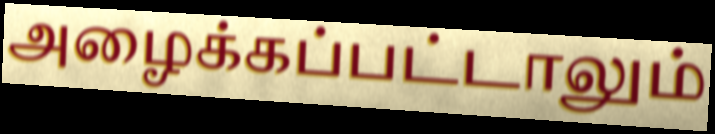
அழைக்கப்பட்டாலும்